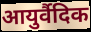
आयुर्वैदिक